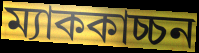
ম্যাককাচ্চন